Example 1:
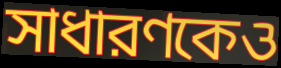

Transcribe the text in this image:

সাধারণকেও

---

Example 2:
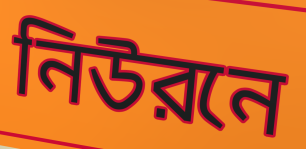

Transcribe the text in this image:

নিউরনে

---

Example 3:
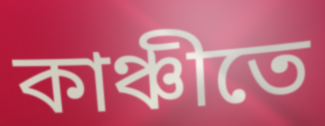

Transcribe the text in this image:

কাঞ্চীতে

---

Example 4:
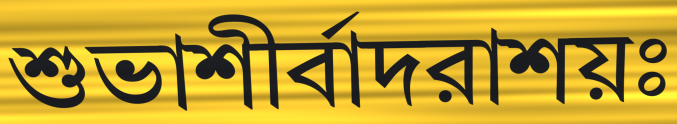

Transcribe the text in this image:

শুভাশীর্বাদরাশয়ঃ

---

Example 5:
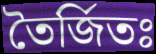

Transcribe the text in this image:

তৈর্জিতঃ